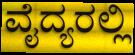
ವೈದ್ಯರಲ್ಲಿ